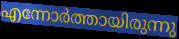
എന്നോർത്തായിരുന്നു